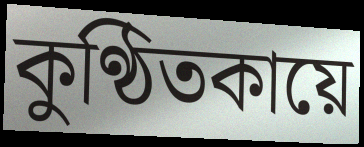
কুণ্ঠিতকায়ে